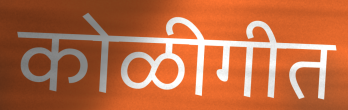
कोळीगीत